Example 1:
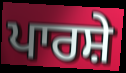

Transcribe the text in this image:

ਪਾਰਸ਼ੇ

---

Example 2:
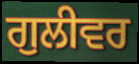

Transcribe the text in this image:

ਗੁਲੀਵਰ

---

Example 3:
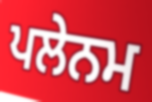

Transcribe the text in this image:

ਪਲੇਨਮ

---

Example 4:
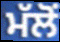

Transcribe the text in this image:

ਮੱਲੋਂ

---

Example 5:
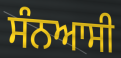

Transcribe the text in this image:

ਸੰਨਆਸੀ